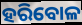
ହରିବୋଳ